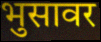
भुसावर